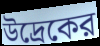
উদ্রেকের